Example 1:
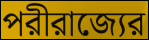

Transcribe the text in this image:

পরীরাজ্যের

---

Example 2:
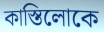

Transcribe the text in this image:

কাস্তিলোকে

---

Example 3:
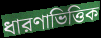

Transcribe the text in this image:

ধারণাভিত্তিক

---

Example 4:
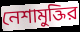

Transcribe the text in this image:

নেশামুক্তির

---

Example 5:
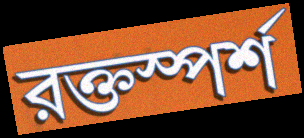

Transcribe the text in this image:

রক্তস্পর্শ